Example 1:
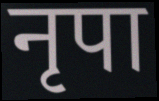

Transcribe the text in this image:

नृपा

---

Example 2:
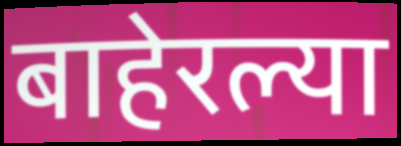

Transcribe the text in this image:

बाहेरल्या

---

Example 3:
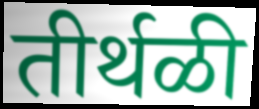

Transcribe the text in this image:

तीर्थळी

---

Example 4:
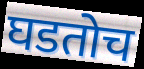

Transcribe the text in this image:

घडतोच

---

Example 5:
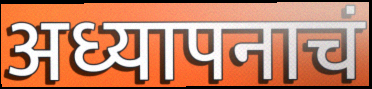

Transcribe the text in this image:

अध्यापनाचं